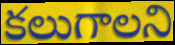
కలుగాలని